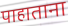
पाहाताना